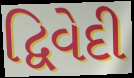
દ્વિવેદી